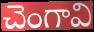
చెంగావి